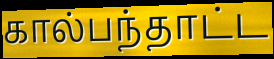
கால்பந்தாட்ட